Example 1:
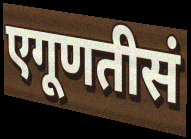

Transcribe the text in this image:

एगूणतीसं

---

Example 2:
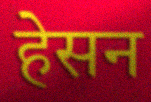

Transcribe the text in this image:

हेसन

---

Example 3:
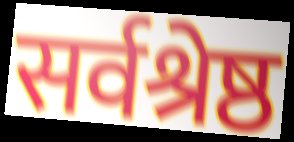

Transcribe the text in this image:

सर्वश्रेष्ठ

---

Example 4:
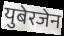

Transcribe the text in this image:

युबेरजेन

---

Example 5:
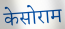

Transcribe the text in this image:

केसोराम